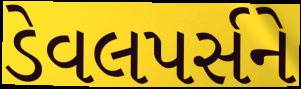
ડેવલપર્સને